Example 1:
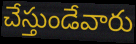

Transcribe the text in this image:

చేస్తుండేవారు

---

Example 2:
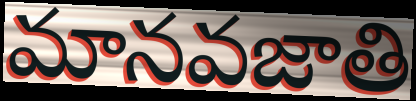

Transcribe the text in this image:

మానవజాతి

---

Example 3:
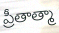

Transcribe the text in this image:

ప్రీతాత్మా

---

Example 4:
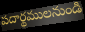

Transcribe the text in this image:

పదార్థములనుండి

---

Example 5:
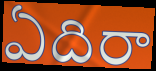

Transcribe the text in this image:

ఏదిరా